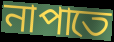
নাপাতে